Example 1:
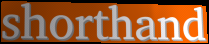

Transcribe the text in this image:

shorthand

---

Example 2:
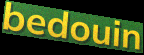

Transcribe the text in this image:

bedouin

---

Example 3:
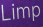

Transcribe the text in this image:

Limp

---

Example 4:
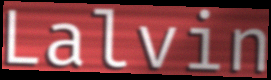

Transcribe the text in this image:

Lalvin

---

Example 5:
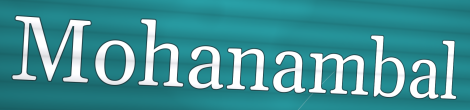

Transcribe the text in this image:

Mohanambal